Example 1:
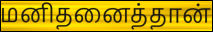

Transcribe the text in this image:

மனிதனைத்தான்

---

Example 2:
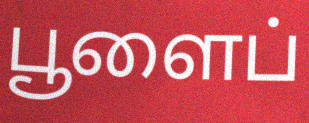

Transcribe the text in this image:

பூளைப்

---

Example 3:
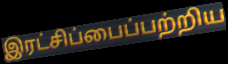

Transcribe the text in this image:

இரட்சிப்பைப்பற்றிய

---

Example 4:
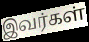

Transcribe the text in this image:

இவர்கள்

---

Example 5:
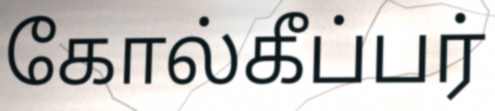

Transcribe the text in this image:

கோல்கீப்பர்